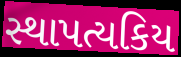
સ્થાપત્યકિય